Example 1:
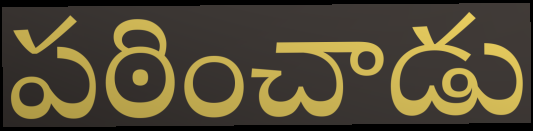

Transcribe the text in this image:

పఠించాడు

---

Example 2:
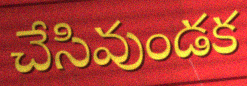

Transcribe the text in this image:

చేసివుండక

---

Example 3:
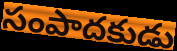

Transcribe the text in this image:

సంపాదకుడు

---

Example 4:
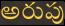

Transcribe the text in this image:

అరుపు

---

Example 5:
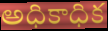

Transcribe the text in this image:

అధికాధిక